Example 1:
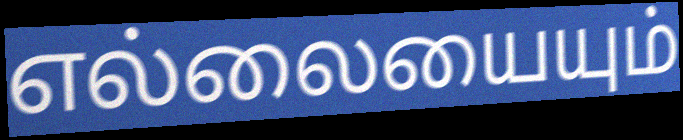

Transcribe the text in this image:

எல்லையையும்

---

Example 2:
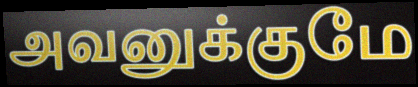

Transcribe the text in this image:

அவனுக்குமே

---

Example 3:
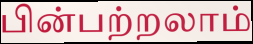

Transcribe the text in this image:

பின்பற்றலாம்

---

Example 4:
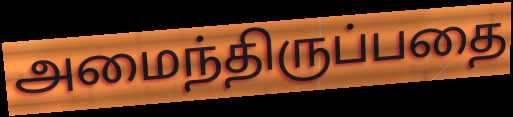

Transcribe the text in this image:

அமைந்திருப்பதை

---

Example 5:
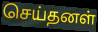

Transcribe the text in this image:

செய்தனள்